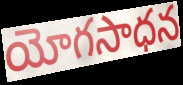
యోగసాధన